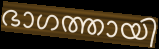
ഭാഗത്തായി